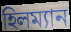
হিলম্যান